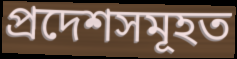
প্ৰদেশসমূহত